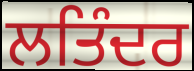
ਲਤਿੰਦਰ